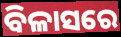
ବିଳାସରେ